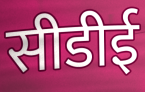
सीडीई